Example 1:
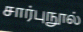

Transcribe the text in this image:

சார்புநூல்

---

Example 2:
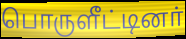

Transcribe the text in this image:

பொருளீட்டினர்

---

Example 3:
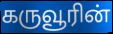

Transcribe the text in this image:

கருவூரின்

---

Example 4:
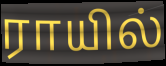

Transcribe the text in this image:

ராயில்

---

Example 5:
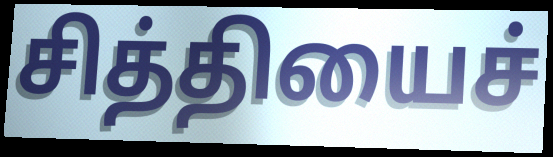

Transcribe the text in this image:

சித்தியைச்